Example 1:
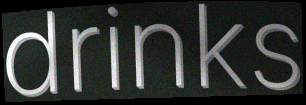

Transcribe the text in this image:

drinks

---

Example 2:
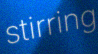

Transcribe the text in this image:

stirring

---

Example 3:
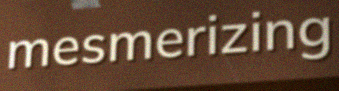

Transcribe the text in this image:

mesmerizing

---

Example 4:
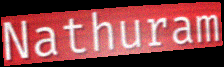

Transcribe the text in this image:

Nathuram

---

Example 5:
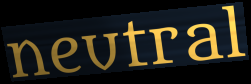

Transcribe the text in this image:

neutral